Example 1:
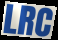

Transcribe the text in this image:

LRC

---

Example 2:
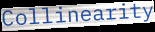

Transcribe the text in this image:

Collinearity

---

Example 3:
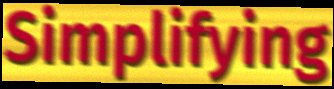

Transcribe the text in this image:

Simplifying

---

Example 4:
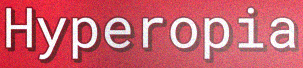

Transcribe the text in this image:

Hyperopia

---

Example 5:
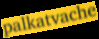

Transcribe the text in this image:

palkatvache